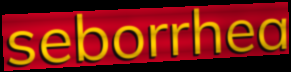
seborrhea